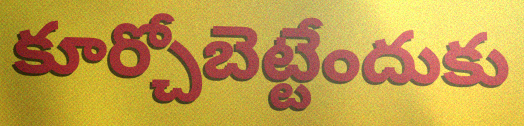
కూర్చోబెట్టేందుకు